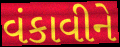
વંકાવીને